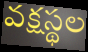
వక్షస్థల